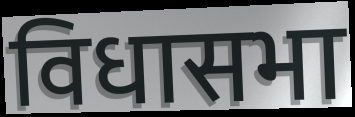
विधासभा